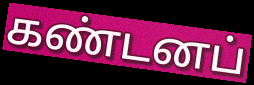
கண்டனப்